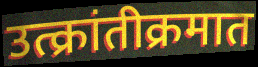
उत्क्रांतीक्रमात